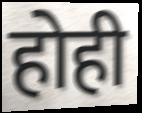
होही